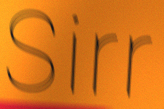
Sirr